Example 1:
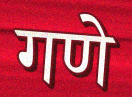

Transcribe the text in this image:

गणे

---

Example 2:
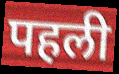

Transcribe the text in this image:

पहली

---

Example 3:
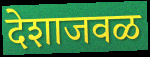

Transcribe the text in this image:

देशाजवळ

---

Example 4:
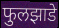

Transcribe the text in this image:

फुलझाडे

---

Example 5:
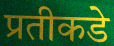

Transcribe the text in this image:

प्रतीकडे